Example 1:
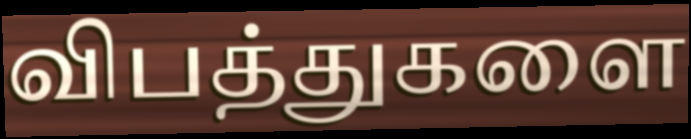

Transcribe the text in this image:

விபத்துகளை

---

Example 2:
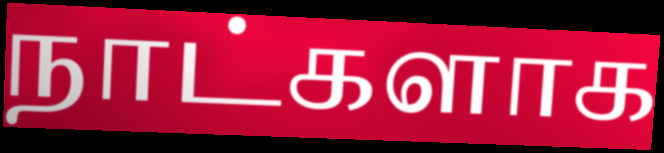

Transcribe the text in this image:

நாட்களாக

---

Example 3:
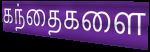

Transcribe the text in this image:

கந்தைகளை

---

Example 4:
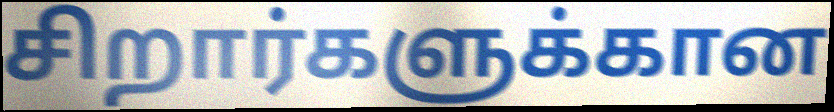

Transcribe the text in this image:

சிறார்களுக்கான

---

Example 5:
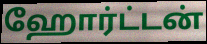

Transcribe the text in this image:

ஹோர்ட்டன்